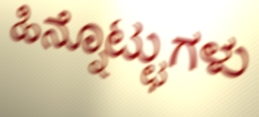
ಹಿನ್ನೊಟ್ಟುಗಳು